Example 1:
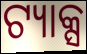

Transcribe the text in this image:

ଟ୍ୟାକ୍ସ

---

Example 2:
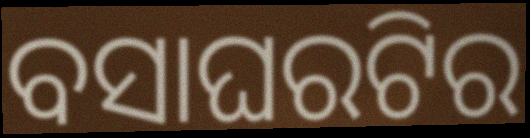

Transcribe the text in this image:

ବସାଘରଟିର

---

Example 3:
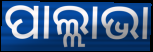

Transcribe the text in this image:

ପାଲ୍ଲାଭା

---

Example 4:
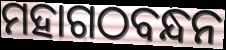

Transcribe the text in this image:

ମହାଗଠବନ୍ଧନ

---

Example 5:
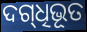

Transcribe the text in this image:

ଦଗ୍‍ଧିଭୂତ